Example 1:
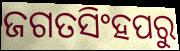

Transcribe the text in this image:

ଜଗତସିଂହପରୁ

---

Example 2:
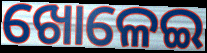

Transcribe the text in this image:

ଖୋଳେଇ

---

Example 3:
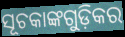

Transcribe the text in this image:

ସୂଚକାଙ୍କଗୁଡ଼ିକର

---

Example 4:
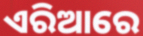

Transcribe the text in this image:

ଏରିଆରେ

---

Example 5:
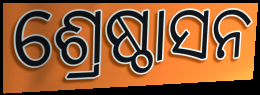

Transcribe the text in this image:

ଶ୍ରେଷ୍ଠାସନ